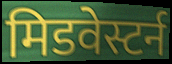
मिडवेस्टर्न